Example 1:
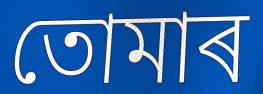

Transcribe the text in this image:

তোমাৰ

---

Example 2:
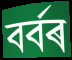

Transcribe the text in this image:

বৰ্বৰ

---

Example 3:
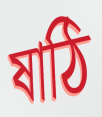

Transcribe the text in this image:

ষাঠি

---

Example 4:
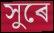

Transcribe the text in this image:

সুৰে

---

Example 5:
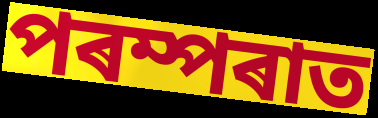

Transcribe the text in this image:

পৰম্পৰাত